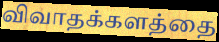
விவாதக்களத்தை